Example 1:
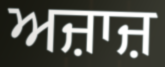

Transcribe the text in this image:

ਅਜ਼ਾਜ਼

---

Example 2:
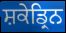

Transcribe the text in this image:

ਸ਼ਕੇਡ੍ਰਿਨ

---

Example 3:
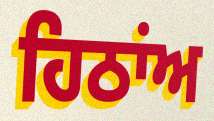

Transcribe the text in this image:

ਹਿਠਾਂਅ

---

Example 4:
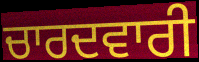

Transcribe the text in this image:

ਚਾਰਦਵਾਰੀ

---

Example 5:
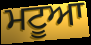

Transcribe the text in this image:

ਮਟੂਆ